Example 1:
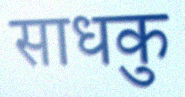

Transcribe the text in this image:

साधकु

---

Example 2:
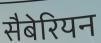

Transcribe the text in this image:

सैबेरियन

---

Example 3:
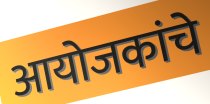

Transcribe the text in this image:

आयोजकांचे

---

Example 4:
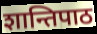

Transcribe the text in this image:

शान्तिपाठ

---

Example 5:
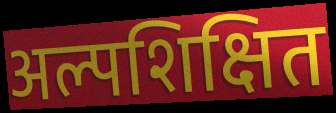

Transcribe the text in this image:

अल्पशिक्षित